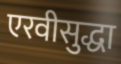
एरवीसुद्धा